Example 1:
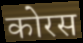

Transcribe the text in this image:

कोरस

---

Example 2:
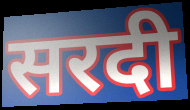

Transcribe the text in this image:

सरदी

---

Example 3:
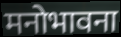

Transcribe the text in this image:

मनोभावना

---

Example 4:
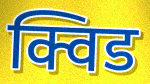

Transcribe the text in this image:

क्विड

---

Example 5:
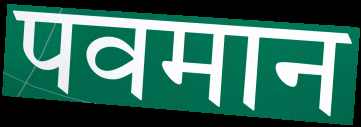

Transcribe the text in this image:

पवमान